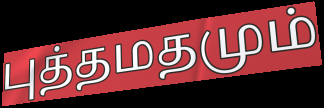
புத்தமதமும்